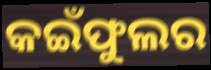
କଇଁଫୁଲର